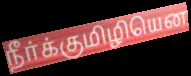
நீர்க்குமிழியென